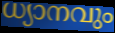
ധ്യാനവും